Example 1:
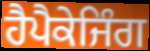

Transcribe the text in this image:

ਹੈਪੈਕੇਜਿੰਗ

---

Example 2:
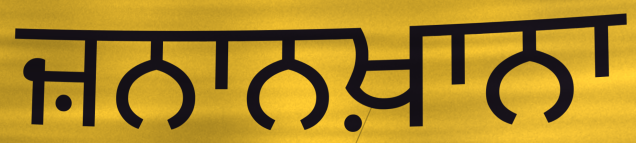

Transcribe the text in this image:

ਜ਼ਨਾਨਖ਼ਾਨਾ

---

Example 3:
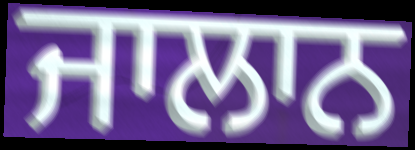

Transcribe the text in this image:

ਜਾਲਾਨ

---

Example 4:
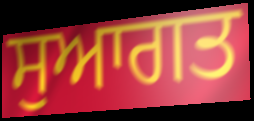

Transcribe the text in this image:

ਸੁਆਗਤ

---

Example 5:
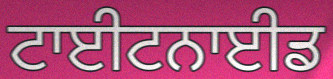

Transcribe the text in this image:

ਟਾਈਟਨਾਈਡ